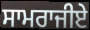
ਸਾਮਰਾਜੀਏ